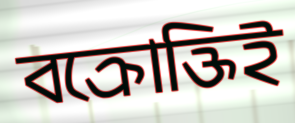
বক্রোক্তিই